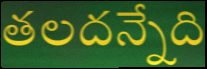
తలదన్నేది